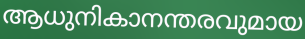
ആധുനികാനന്തരവുമായ